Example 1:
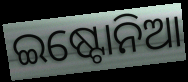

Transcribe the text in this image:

ଇଷ୍ଟୋନିଆ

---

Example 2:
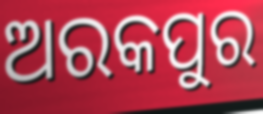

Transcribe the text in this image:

ଅରକପୁର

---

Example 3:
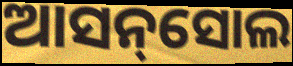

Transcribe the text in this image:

ଆସନ୍‌ସୋଲ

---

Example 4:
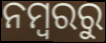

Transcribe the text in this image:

ନମ୍ୱରରୁ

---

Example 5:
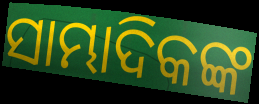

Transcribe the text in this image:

ସାମ୍ଭାଦିକଙ୍କ